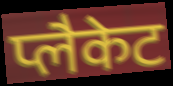
प्लैकेट